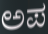
ಅಪ